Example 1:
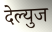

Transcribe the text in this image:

देल्युज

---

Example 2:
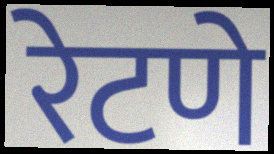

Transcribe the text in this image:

रेटणे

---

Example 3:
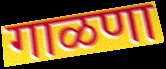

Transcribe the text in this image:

गाळणा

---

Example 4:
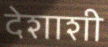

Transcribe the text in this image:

देशाशी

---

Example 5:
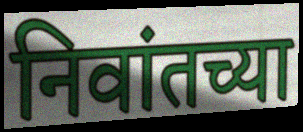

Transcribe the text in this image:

निवांतच्या